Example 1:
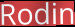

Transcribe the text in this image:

Rodin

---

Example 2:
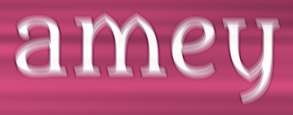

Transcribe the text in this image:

amey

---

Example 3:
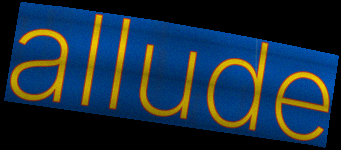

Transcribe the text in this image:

allude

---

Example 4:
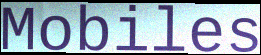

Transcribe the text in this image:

Mobiles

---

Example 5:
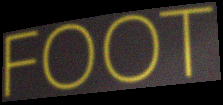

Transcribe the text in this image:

FOOT